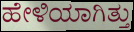
ಹೇಳಿಯಾಗಿತ್ತು